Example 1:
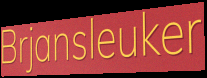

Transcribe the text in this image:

Brjansleuker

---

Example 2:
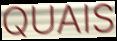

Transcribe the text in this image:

QUAIS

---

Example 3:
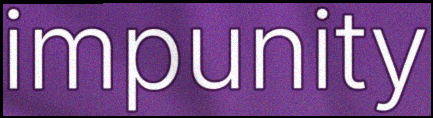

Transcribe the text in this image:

impunity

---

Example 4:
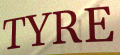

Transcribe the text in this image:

TYRE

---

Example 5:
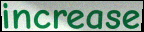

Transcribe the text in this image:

increase